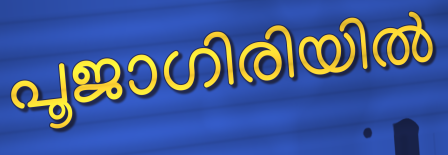
പൂജാഗിരിയിൽ